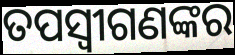
ତପସ୍ୱୀଗଣଙ୍କର